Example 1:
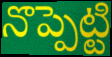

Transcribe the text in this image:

నొప్పెట్టి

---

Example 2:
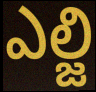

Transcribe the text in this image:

ఎల్జి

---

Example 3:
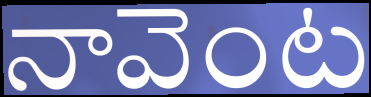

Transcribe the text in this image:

నావెంట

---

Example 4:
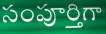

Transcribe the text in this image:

సంపూర్తిగా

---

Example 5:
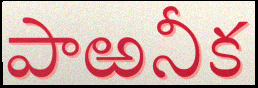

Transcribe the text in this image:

పాఱనీక